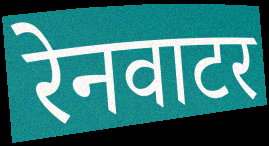
रेनवाटर